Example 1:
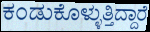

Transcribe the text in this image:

ಕಂಡುಕೊಳ್ಳುತ್ತಿದ್ದಾರೆ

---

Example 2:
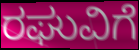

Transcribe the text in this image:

ರಘುವಿಗೆ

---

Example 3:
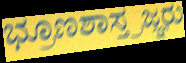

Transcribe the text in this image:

ಭ್ರೂಣಶಾಸ್ತ್ರಜ್ಞರು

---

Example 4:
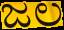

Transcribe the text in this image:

ಜಲ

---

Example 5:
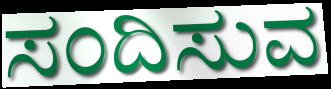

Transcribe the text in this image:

ಸಂದಿಸುವ